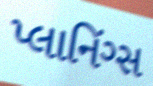
પ્લાનિંગ્સ